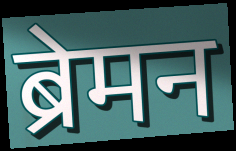
ब्रेमन